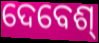
ଦେବେଶ୍